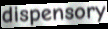
dispensory